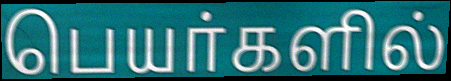
பெயர்களில்